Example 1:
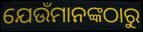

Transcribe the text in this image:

ଯେଉଁମାନଙ୍କଠାରୁ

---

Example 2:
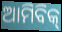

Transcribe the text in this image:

ଆମିବିକ୍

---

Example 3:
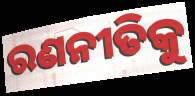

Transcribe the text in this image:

ରଣନୀତିକୁ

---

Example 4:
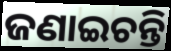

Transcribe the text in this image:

ଜଣାଇଚନ୍ତି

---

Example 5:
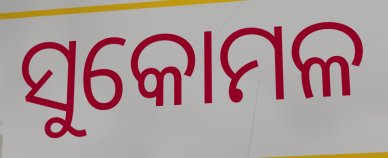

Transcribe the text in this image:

ସୁକୋମଳ